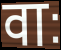
वाः